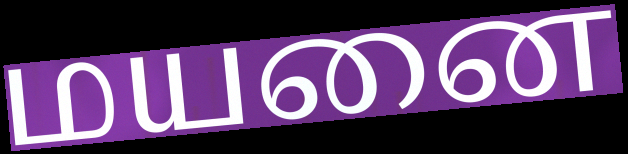
மயனை